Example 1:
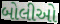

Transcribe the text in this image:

બોલીઓ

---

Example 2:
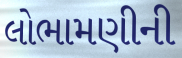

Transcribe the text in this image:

લોભામણીની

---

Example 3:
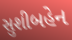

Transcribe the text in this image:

સુશીબહેન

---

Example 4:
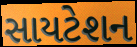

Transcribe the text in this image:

સાયટેશન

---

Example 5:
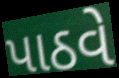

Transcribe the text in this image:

પાઠવે